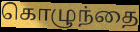
கொழுந்தை